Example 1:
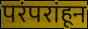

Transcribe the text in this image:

परंपरांहून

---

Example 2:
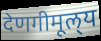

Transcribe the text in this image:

देणगीमूल्य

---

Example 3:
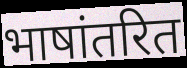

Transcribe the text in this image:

भाषांतरित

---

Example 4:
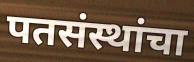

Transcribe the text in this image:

पतसंस्थांचा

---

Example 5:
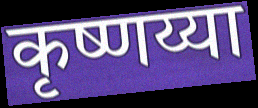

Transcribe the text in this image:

कृष्णय्या